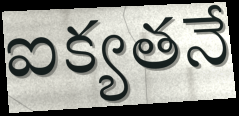
ఐక్యతనే